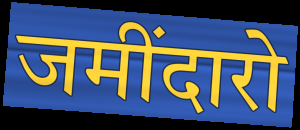
जमींदारो